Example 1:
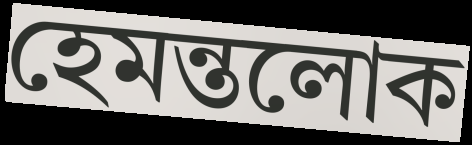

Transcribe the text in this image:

হেমন্তলোক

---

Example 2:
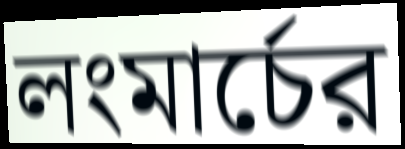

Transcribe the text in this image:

লংমার্চের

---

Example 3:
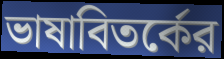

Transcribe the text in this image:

ভাষাবিতর্কের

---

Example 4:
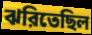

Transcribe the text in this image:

ঝরিতেছিল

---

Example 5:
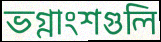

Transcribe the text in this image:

ভগ্নাংশগুলি